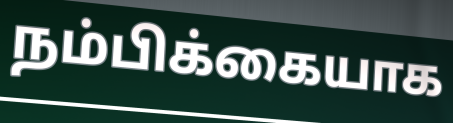
நம்பிக்கையாக